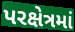
પરક્ષેત્રમાં